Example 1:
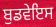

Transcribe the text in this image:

ਬੁਡਵੇਇਸ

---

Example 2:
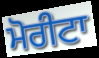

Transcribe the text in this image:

ਮੋਰੀਟਾ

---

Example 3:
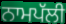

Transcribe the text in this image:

ਨਾਮਪੱਲੀ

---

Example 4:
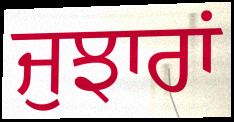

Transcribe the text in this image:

ਜੁਝਾਰਾਂ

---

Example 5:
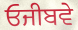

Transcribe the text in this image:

ਓਜੀਬਵੇ